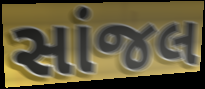
સાંજલ